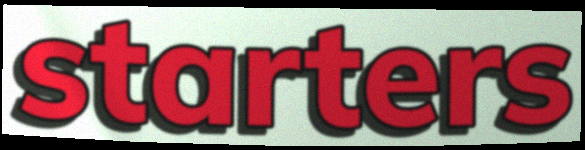
starters